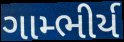
ગામ્ભીર્ય